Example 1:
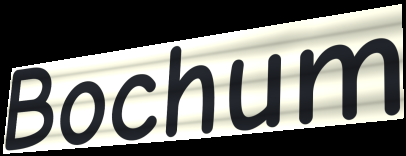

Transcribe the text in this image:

Bochum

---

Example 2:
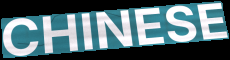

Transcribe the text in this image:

CHINESE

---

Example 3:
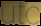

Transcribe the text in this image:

utc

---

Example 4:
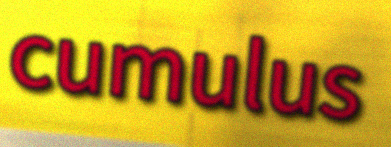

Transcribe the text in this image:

cumulus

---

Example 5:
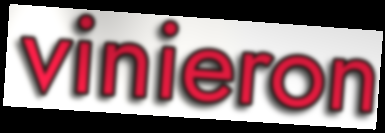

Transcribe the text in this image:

vinieron